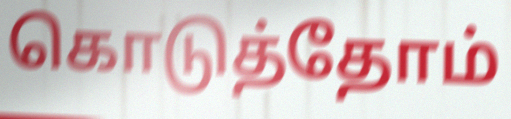
கொடுத்தோம்